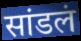
सांडलं